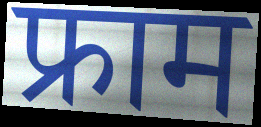
फ्राम